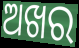
ଅଖର